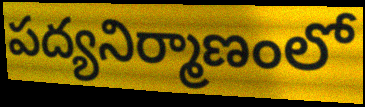
పద్యనిర్మాణంలో